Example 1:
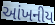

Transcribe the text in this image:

આંખનીય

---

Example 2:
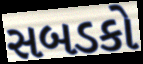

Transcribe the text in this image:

સબડકો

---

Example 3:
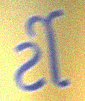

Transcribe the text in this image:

ર્ટી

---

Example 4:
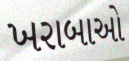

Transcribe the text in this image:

ખરાબાઓ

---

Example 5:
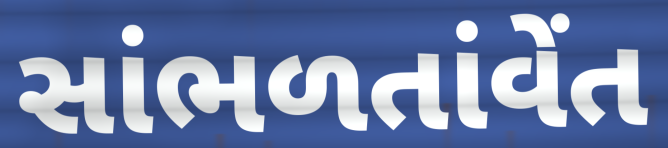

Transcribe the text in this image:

સાંભળતાંવેંત